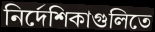
নির্দেশিকাগুলিতে